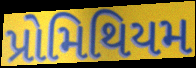
પ્રોમિથિયમ